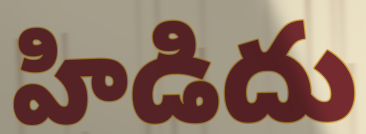
హిడిదు